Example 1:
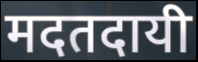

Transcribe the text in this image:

मदतदायी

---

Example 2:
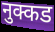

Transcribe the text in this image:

नुक्कड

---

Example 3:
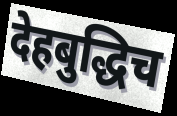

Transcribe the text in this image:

देहबुद्धिच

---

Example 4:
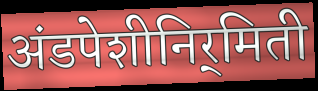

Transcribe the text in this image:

अंडपेशीनिर्मिती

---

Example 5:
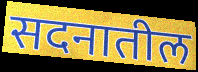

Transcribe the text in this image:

सदनातील